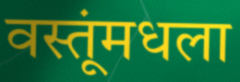
वस्तूंमधला